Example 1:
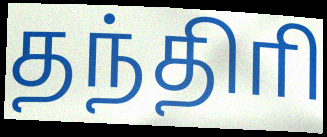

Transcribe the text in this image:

தந்திரி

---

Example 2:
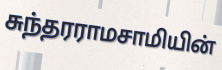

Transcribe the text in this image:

சுந்தரராமசாமியின்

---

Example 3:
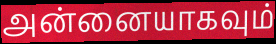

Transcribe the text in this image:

அன்னையாகவும்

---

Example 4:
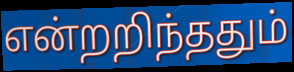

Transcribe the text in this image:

என்றறிந்ததும்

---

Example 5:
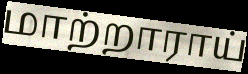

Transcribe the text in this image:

மாற்றாராய்